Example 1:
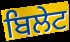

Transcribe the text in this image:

ਬਿਲੇਟ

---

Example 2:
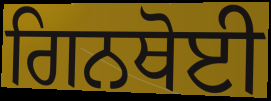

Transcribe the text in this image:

ਗਿਨਥੋਈ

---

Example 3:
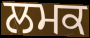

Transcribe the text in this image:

ਲਮਕ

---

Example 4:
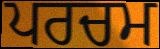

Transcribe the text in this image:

ਪਰਚਮ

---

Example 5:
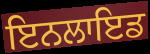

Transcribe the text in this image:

ਇਨਲਾਇਡ